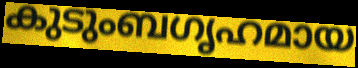
കുടുംബഗൃഹമായ